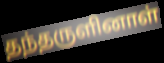
தந்தருளினாள்